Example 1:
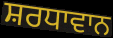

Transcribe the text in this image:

ਸ਼ਰਧਾਵਾਨ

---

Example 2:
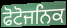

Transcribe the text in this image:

ਫੋਟੋਜਨਿਕ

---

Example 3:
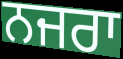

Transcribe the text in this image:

ਨਜਰਾ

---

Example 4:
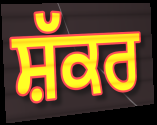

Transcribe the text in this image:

ਸ਼ੱਕਰ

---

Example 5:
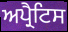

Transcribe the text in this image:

ਅਪ੍ਰੈਟਿਸ